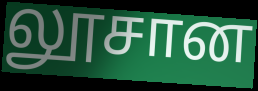
லூசான